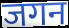
जगन